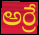
అర్రే